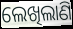
ଲେଖିଲାଣି